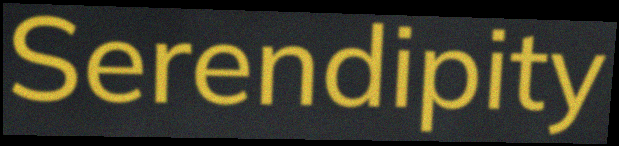
Serendipity